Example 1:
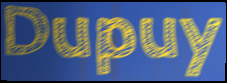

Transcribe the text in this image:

Dupuy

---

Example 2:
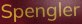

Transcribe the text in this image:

Spengler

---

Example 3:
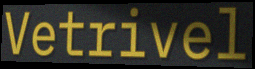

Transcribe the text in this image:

Vetrivel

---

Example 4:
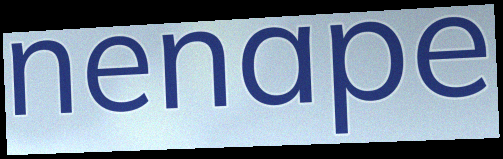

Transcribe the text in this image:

nenape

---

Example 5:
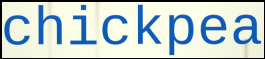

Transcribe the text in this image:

chickpea